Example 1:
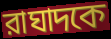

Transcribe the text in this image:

রাঘাদকে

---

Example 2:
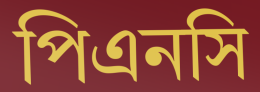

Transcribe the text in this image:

পিএনসি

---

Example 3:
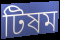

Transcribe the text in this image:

টিষম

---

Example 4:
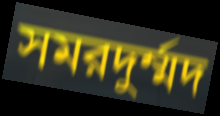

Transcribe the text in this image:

সমরদুর্ম্মদ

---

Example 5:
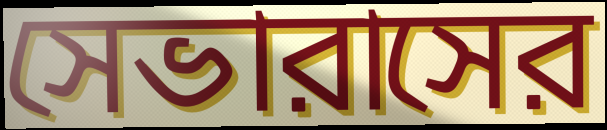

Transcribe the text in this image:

সেভারাসের